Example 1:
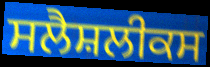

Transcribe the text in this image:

ਸਲੈਸ਼ਲੀਕਸ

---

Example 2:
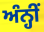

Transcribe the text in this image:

ਅੰਨ੍ਹੀਂ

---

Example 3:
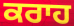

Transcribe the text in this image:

ਕਰਾਹ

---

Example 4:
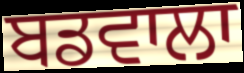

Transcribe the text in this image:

ਬਡਵਾਲਾ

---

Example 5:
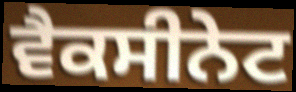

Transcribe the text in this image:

ਵੈਕਸੀਨੇਟ